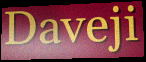
Daveji